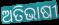
ଅତିଭାଷୀ